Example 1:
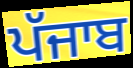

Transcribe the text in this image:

ਪੱਜਾਬ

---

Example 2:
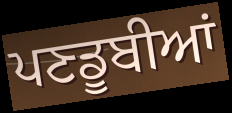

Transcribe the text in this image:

ਪਣਡੂਬੀਆਂ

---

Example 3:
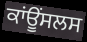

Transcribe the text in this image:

ਕਾਂਊਂਸਲਸ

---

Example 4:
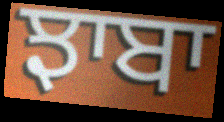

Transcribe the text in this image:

ਝਾਬਾ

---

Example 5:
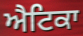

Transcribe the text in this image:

ਐਟਿਕਾ